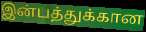
இன்பத்துக்கான